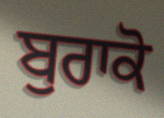
ਬੁਰਾਕੋ